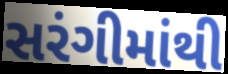
સરંગીમાંથી